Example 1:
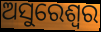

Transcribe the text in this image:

ଅସୁରେଶ୍ଵର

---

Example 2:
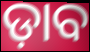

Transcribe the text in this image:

ଡ଼ାବ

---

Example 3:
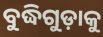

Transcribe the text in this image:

ବୁଦ୍ଧିଗୁଡ଼ାକୁ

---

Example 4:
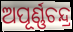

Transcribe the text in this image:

ଅପୂର୍ଣ୍ଣଚନ୍ଦ୍ର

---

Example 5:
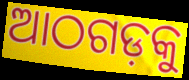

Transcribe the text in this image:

ଆଠଗଡ଼କୁ